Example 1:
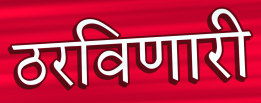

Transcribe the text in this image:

ठरविणारी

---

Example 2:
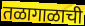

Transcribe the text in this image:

तळागाळाची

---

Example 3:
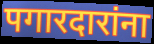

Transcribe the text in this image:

पगारदारांना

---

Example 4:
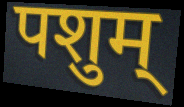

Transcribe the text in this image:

पशुम्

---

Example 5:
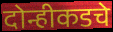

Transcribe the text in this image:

दोन्हीकडचे